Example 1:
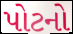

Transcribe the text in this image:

પોટનો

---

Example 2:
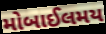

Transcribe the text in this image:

મોબાઈલમય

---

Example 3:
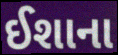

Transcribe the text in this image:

ઈશાના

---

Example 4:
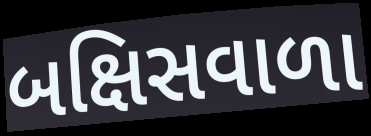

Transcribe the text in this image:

બક્ષિસવાળા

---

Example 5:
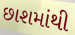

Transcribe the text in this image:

છાશમાંથી